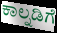
ಕಾಲ್ನಡಿಗೆ